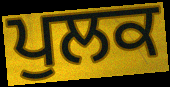
ਪੁਲਕ